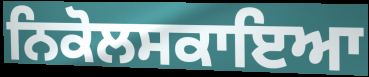
ਨਿਕੋਲਸਕਾਇਆ